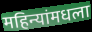
महिन्यांमधला